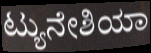
ಟ್ಯುನೇಶಿಯಾ